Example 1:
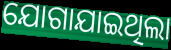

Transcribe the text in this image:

ଯୋଗାଯାଇଥିଲା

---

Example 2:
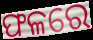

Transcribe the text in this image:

ଫଳରେ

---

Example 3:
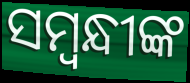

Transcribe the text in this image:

ସମ୍ବନ୍ଧୀଙ୍କ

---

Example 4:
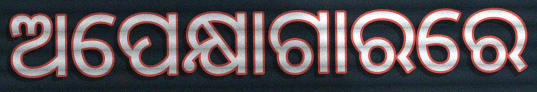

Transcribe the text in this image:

ଅପେକ୍ଷାଗାରରେ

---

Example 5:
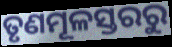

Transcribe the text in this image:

ତୃଣମୂଳସ୍ତରରୁ